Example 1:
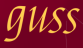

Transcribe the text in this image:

guss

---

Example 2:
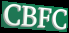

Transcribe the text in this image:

CBFC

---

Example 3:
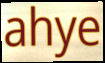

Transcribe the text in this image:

ahye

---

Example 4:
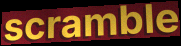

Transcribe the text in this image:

scramble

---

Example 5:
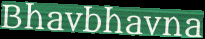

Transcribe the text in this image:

Bhavbhavna